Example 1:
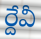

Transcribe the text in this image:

ర్దేవీ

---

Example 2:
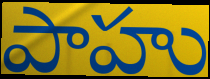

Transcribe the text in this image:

పాహు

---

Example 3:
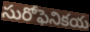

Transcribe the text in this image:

సురోఫెనికయ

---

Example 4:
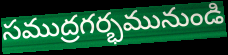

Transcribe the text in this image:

సముద్రగర్భమునుండి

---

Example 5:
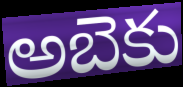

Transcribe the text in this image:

అబెకు